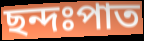
ছন্দঃপাত